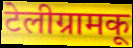
टेलीग्रामकू